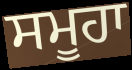
ਸਮੂਹਾ